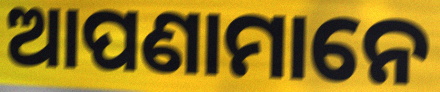
ଆପଣାମାନେ